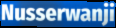
Nusserwanji